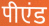
पीएंड